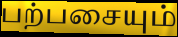
பற்பசையும்